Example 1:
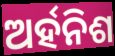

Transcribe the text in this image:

ଅର୍ହନିଶ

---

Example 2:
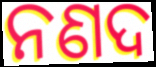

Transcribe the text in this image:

ନଣଦ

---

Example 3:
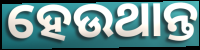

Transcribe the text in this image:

ହେଉଥାନ୍ତ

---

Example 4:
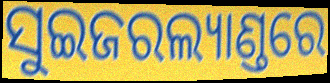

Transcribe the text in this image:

ସୁଇଜରଲ୍ୟାଣ୍ଡରେ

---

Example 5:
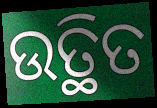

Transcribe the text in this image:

ଉତ୍ଥିତ